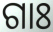
ଗାଃ